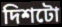
দিশটো